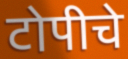
टोपीचे